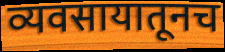
व्यवसायातूनच